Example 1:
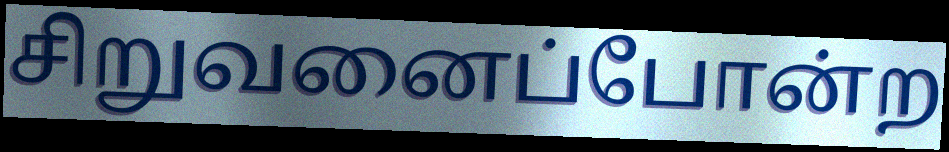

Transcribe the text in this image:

சிறுவனைப்போன்ற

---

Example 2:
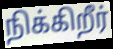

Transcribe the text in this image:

நிக்கிறீர்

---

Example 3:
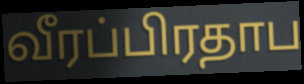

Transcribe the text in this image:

வீரப்பிரதாப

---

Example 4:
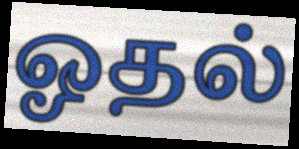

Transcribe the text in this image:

ஓதல்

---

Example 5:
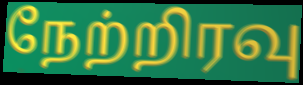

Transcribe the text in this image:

நேற்றிரவு